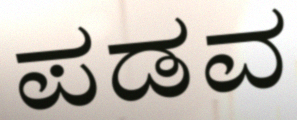
ಪಡವ